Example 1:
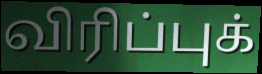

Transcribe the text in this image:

விரிப்புக்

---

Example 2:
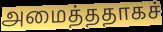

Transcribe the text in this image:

அமைத்ததாகச்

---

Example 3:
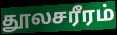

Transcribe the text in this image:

தூலசரீரம்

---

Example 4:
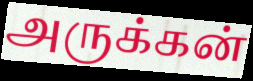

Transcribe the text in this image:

அருக்கன்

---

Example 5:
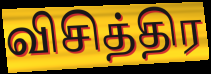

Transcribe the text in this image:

விசித்திர